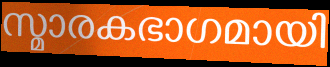
സ്മാരകഭാഗമായി